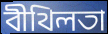
বীথিলতা